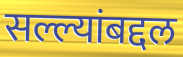
सल्ल्यांबद्दल